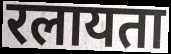
रलायता